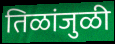
तिळांजुळी